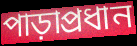
পাড়াপ্রধান